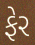
ફેર